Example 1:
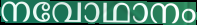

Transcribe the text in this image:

നവോഥാനം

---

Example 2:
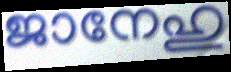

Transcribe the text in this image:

ജാനേഹു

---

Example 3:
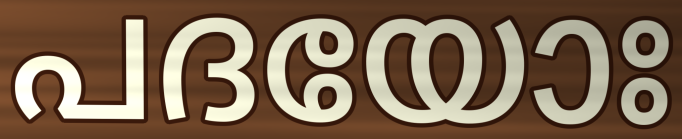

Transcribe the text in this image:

പദയോഃ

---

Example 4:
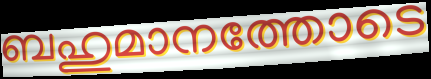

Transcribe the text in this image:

ബഹുമാനത്തോടെ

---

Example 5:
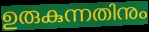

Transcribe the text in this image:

ഉരുകുന്നതിനും